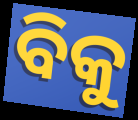
ବିକୁ